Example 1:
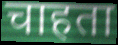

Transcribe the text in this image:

चाहता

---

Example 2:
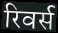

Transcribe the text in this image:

रिवर्स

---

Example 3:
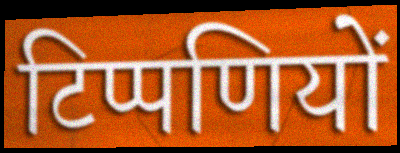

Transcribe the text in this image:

टिप्पणियों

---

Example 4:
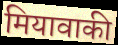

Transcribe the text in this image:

मियावाकी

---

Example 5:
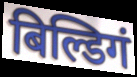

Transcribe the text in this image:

बिल्डिगं